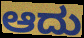
ಆದು